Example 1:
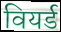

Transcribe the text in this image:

वियर्ड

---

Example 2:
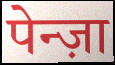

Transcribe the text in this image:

पेन्ज़ा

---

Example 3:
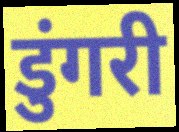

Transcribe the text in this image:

डुंगरी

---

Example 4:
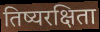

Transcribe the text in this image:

तिष्यरक्षिता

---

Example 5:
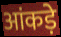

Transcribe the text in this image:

आंकड़े